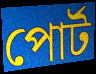
পোর্ট